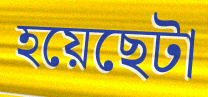
হয়েছেটা